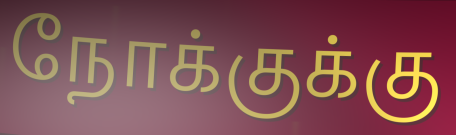
நோக்குக்கு